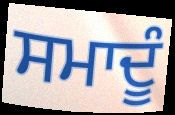
ਸਮਾਦੂੰ